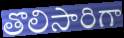
తొలిసారిగా